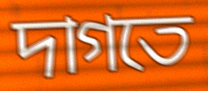
দাগতে